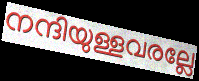
നന്ദിയുള്ളവരല്ലേ